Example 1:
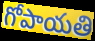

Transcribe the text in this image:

గోపాయతి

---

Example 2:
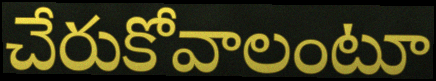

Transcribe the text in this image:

చేరుకోవాలంటూ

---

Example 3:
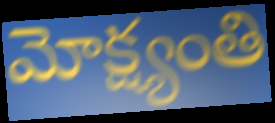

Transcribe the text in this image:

మోక్ష్యంతి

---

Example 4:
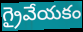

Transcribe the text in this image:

గ్రైవేయకం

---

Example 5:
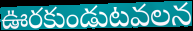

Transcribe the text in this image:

ఊరకుండుటవలన